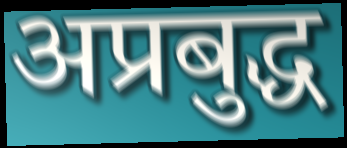
अप्रबुद्ध